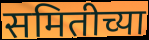
समितीच्‍या